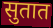
सुतात